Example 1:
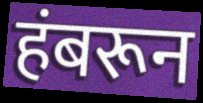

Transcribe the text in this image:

हंबरून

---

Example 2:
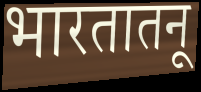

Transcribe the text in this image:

भारतातनू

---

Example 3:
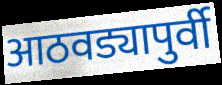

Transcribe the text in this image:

आठवड्यापुर्वी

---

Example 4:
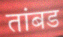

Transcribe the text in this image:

तांबड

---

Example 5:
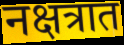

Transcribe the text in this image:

नक्षत्रात